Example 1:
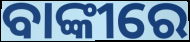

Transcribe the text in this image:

ବାଙ୍କୀରେ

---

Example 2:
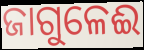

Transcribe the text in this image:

ଜାଗୁଳେଈ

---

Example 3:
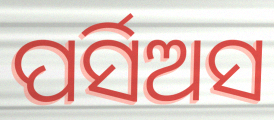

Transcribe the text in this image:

ପର୍ସିଅସ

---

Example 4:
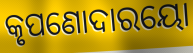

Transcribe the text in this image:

କୃପଣୋଦାରୟୋ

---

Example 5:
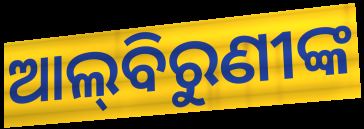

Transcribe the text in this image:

ଆଲ୍‌ବିରୁଣୀଙ୍କ